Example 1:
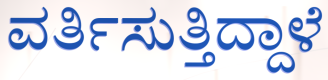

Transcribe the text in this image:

ವರ್ತಿಸುತ್ತಿದ್ದಾಳೆ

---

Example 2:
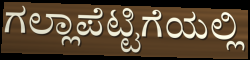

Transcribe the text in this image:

ಗಲ್ಲಾಪೆಟ್ಟಿಗೆಯಲ್ಲಿ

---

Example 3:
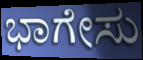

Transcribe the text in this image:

ಭಾಗೇಸು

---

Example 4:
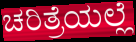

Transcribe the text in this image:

ಚರಿತ್ರೆಯಲ್ಲೆ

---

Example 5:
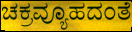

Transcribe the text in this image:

ಚಕ್ರವ್ಯೂಹದಂತೆ